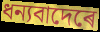
ধন্যবাদেৰে